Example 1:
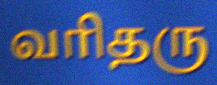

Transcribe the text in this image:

வரிதரு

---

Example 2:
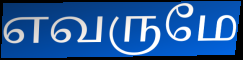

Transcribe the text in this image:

எவருமே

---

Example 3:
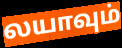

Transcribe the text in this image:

லயாவும்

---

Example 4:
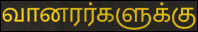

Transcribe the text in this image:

வானரர்களுக்கு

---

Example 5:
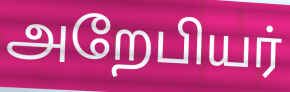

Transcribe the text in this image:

அறேபியர்